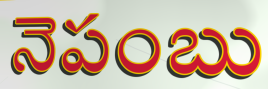
నెపంబు